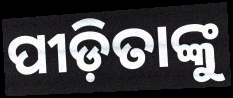
ପୀଡ଼ିତାଙ୍କୁ